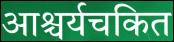
आश्चर्यचकित